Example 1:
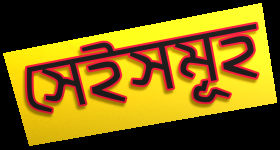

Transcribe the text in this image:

সেইসমূহ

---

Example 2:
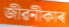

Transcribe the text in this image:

জীৱনীকাৰ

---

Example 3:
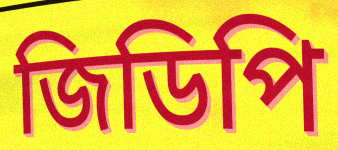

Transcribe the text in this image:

জিডিপি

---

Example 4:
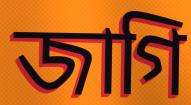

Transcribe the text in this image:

জাগি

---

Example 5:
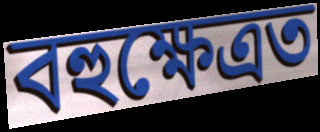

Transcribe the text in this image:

বহুক্ষেত্ৰত